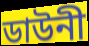
ডাউনী